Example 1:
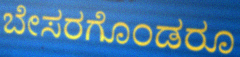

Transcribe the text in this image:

ಬೇಸರಗೊಂಡರೂ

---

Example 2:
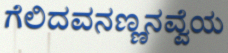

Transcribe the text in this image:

ಗೆಲಿದವನಣ್ಣನವ್ವೆಯ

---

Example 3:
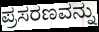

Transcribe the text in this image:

ಪ್ರಸರಣವನ್ನು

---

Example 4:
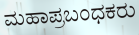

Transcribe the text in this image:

ಮಹಾಪ್ರಬಂಧಕರು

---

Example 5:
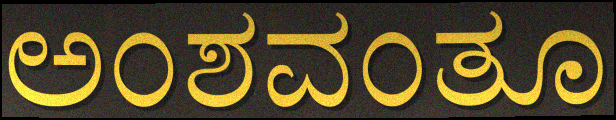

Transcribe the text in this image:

ಅಂಶವಂತೂ